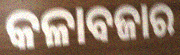
କଳାବଜାର